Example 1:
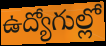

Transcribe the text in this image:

ఉద్యోగుల్లో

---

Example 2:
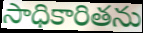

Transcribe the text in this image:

సాధికారితను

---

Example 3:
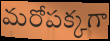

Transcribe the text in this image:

మరోపక్కగా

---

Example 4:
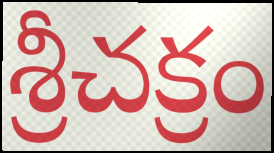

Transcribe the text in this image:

శ్రీచక్రం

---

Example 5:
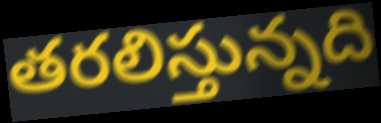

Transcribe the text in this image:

తరలిస్తున్నది